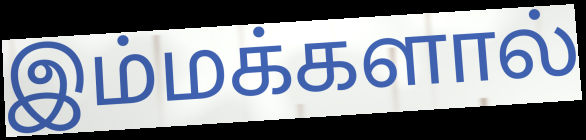
இம்மக்களால்